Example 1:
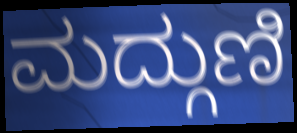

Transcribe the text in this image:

ಮದ್ಗುಣಿ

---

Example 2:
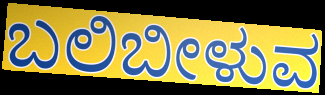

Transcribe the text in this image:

ಬಲಿಬೀಳುವ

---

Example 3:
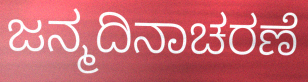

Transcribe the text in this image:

ಜನ್ಮದಿನಾಚರಣೆ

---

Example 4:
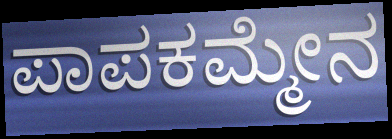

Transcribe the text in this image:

ಪಾಪಕಮ್ಮೇನ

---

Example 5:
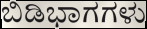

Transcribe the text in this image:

ಬಿಡಿಭಾಗಗಳು